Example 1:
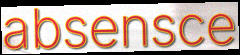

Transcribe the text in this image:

absensce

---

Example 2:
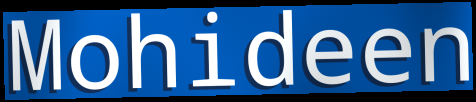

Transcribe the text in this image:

Mohideen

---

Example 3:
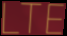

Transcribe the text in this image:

LTE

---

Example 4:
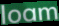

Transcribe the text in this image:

loam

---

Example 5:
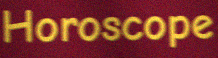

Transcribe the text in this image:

Horoscope